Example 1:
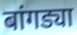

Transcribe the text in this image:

बांगड्या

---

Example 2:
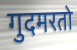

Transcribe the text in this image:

गुदमरतो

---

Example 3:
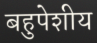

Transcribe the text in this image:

बहुपेशीय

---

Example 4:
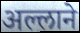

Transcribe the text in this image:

अल्लाने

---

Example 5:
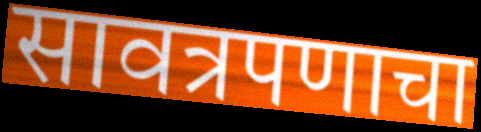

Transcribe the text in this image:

सावत्रपणाचा